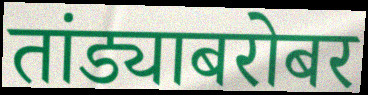
तांड्याबरोबर